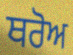
ਥਰੋਅ